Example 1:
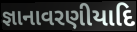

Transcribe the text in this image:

જ્ઞાનાવરણીયાદિ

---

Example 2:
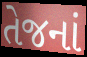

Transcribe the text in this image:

તેજનાં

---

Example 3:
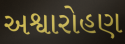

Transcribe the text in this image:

અશ્વારોહણ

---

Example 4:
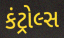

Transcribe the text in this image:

કંટ્રોલ્સ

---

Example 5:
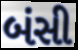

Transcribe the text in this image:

બંસી